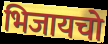
भिजायचो